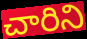
చారిని